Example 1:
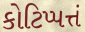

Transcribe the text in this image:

કોટિપ્પત્તં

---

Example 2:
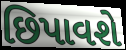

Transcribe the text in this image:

છિપાવશે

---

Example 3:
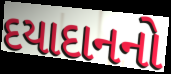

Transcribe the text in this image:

દયાદાનનો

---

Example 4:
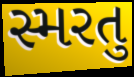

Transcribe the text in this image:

સ્મરતુ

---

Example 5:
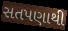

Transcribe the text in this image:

સતપણાથી